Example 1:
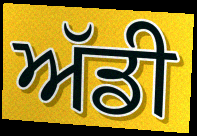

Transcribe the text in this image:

ਅੱਡੀ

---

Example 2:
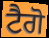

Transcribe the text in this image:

ਟੈਗੋ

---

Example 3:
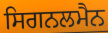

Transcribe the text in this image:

ਸਿਗਨਲਮੈਨ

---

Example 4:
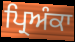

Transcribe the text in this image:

ਪ੍ਰਿਅੰਕਾ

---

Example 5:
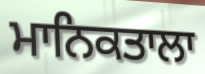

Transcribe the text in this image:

ਮਾਨਿਕਤਾਲਾ